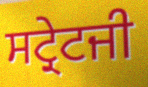
ਸਟ੍ਰੇਟਜੀ